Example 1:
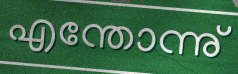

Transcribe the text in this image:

എന്തോന്നു്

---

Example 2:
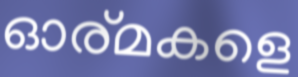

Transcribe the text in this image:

ഓര്മകളെ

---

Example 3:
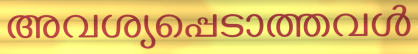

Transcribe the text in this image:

അവശ്യപ്പെടാത്തവൾ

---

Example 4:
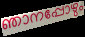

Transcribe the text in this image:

ഞാനപ്പോഴും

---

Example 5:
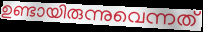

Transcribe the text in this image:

ഉണ്ടായിരുന്നുവെന്നത്